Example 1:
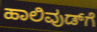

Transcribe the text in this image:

ಹಾಲಿವುಡ್‌ಗೆ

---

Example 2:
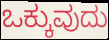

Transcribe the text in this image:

ಒಕ್ಕುವುದು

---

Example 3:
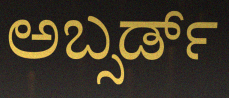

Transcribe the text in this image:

ಅಬ್ಸರ್ಡ್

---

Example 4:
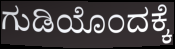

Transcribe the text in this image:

ಗುಡಿಯೊಂದಕ್ಕೆ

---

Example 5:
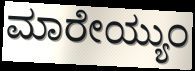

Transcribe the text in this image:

ಮಾರೇಯ್ಯುಂ